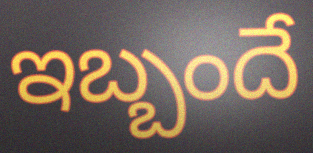
ఇబ్బందే